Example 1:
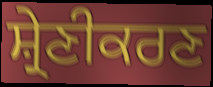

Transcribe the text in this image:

ਸ਼੍ਰੇਣੀਕਰਣ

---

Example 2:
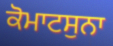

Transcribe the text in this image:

ਕੋਮਾਟਸੁਨਾ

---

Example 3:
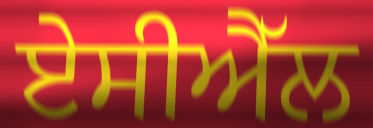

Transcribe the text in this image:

ਏਸੀਐੱਲ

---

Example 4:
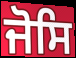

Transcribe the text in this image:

ਜੋਸਿ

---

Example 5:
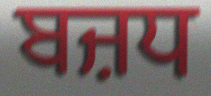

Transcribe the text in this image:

ਬਜ਼ਧ